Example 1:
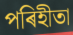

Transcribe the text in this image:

পৰিহীতা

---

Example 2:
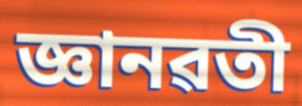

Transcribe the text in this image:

জ্ঞানৱতী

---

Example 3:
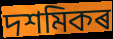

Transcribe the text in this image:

দশমিকৰ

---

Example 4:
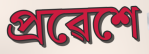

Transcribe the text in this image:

প্ৰৱেশে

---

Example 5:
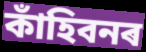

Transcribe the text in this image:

কাঁহিবনৰ